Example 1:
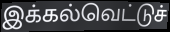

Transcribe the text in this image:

இக்கல்வெட்டுச்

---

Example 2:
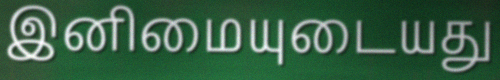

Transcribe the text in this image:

இனிமையுடையது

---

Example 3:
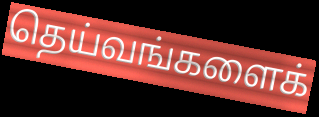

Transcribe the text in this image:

தெய்வங்களைக்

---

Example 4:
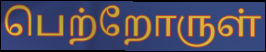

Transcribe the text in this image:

பெற்றோருள்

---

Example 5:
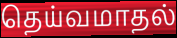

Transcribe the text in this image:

தெய்வமாதல்